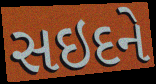
સઇદને